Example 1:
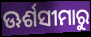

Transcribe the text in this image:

ଊର୍ଶସୀମାରୁ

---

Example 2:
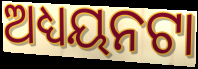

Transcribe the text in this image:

ଅଧ୍ୟୟନଟା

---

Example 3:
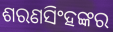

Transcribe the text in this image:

ଶରଣସିଂହଙ୍କର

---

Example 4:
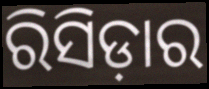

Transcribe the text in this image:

ରିସିଡ଼ାର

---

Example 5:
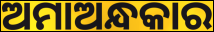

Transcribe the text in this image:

ଅମାଅନ୍ଧକାର